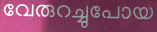
വേരുറച്ചുപോയ